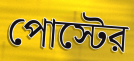
পোস্টের